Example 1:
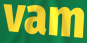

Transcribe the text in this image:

vam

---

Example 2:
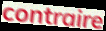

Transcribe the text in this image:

contraire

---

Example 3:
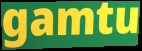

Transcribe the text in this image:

gamtu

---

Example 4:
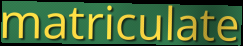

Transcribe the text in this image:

matriculate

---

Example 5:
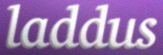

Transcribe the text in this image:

laddus